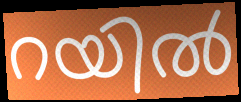
റയിൽ